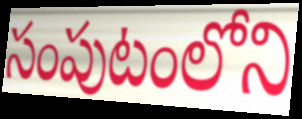
సంపుటంలోని